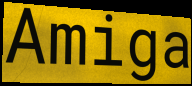
Amiga